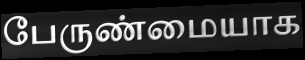
பேருண்மையாக